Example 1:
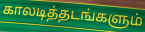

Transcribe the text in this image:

காலடித்தடங்களும்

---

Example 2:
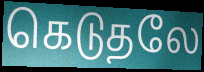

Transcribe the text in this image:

கெடுதலே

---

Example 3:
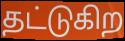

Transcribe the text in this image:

தட்டுகிற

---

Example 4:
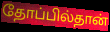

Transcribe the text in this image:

தோப்பில்தான்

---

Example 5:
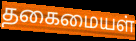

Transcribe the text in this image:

தகைமையள்